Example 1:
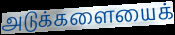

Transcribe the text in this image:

அடுக்களையைக்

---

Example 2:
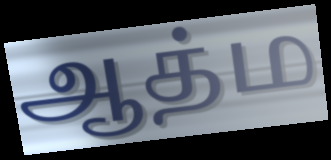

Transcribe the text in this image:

ஆத்ம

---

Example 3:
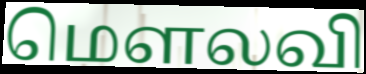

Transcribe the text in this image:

மௌலவி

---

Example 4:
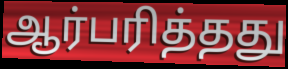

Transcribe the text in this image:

ஆர்பரித்தது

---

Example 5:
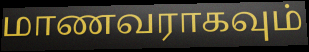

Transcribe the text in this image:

மாணவராகவும்